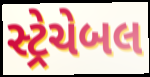
સ્ટ્રેચેબલ